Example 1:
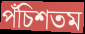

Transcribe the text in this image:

পঁচিশতম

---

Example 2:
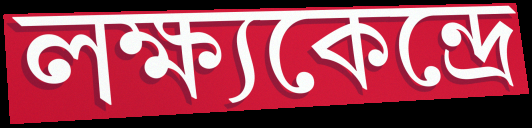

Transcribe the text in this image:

লক্ষ্যকেন্দ্রে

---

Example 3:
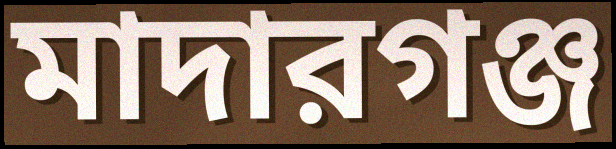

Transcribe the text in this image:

মাদারগঞ্জ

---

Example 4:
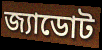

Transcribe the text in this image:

জ্যাডোট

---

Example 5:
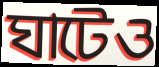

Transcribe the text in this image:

ঘাটেও